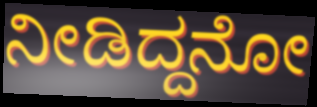
ನೀಡಿದ್ದನೋ